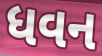
ધવન